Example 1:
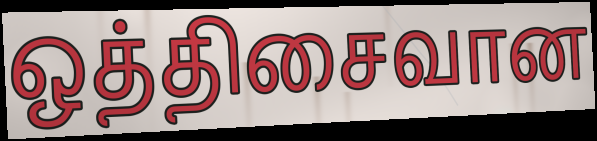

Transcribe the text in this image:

ஒத்திசைவான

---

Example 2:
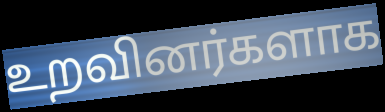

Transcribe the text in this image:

உறவினர்களாக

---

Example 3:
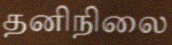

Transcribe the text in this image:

தனிநிலை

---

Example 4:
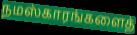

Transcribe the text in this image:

நமஸ்காரங்களைத்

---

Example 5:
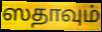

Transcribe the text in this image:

ஸதாவும்